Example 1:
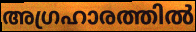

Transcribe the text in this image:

അഗ്രഹാരത്തിൽ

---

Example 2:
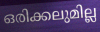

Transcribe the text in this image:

ഒരിക്കലുമില്ല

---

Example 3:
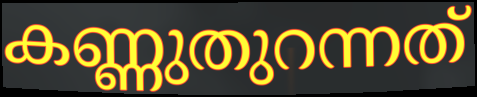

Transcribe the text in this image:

കണ്ണുതുറന്നത്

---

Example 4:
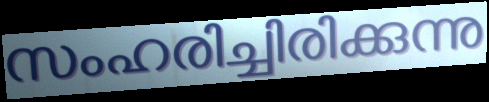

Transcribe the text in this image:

സംഹരിച്ചിരിക്കുന്നു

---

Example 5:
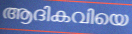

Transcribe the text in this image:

ആദികവിയെ